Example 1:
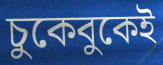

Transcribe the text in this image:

চুকেবুকেই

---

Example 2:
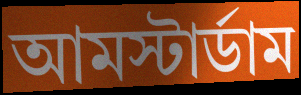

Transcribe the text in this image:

আমস্টার্ডাম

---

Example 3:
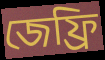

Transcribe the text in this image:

জেফ্রি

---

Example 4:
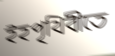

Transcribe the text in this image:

ইহপৃথিবীতে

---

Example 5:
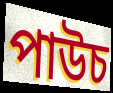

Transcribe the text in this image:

পাউচ